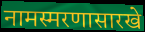
नामस्मरणासारखे